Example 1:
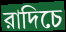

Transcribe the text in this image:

রাদিচে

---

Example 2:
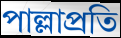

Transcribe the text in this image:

পাল্লাপ্রতি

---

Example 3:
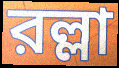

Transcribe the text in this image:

রল্লা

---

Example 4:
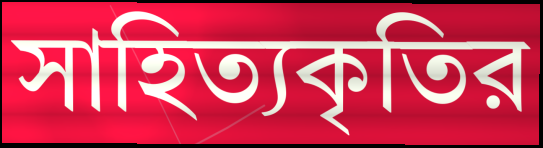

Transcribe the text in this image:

সাহিত্যকৃতির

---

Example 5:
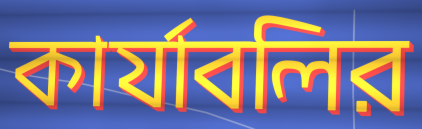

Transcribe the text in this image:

কার্যাবলির